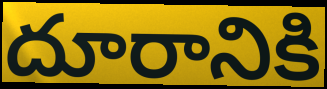
దూరానికి